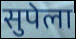
सुपेला